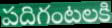
పదిగంటలకి